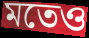
মতেও